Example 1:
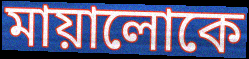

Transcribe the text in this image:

মায়ালোকে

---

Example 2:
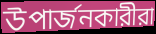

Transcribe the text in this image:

উপার্জনকারীরা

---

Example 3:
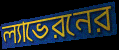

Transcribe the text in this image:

ল্যাভেরনের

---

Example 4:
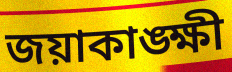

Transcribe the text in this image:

জয়াকাঙ্ক্ষী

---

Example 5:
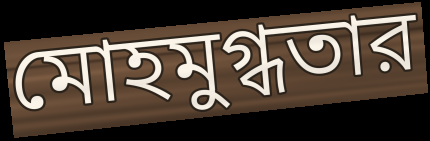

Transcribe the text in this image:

মোহমুগ্ধতার